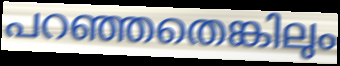
പറഞ്ഞതെങ്കിലും